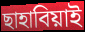
ছাহাবিয়াই